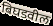
बिघडवील